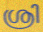
ശ്രി